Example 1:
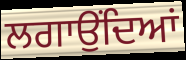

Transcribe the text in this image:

ਲਗਾਉਂਦਿਆਂ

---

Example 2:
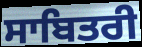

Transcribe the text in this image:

ਸਾਬਿਤਰੀ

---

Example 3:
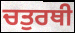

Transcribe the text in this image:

ਚਤੁਰਥੀ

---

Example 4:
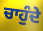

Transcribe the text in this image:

ਚਾਹੁੰਦੇ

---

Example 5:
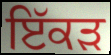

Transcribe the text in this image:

ਇੱਕੜ